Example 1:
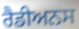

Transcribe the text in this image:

ਰੈਡੀਅਨਸ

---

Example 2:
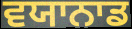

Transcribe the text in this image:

ਵਯਾਨਾਡ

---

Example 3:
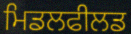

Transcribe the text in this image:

ਮਿਡਲਫੀਲਡ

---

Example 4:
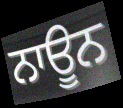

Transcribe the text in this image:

ਨਾਊਨ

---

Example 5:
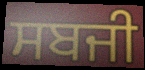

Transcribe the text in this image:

ਸਬਜੀ